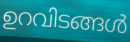
ഉറവിടങ്ങൾ